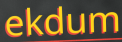
ekdum